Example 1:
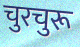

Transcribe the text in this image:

चुरचुरू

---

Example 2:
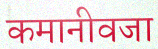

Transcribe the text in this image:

कमानीवजा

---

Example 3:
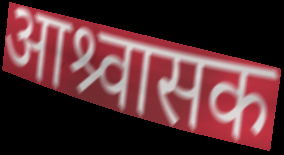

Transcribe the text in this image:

आश्र्वासक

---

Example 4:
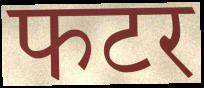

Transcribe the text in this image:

फटर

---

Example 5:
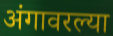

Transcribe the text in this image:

अंगावरल्या